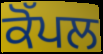
ਕੋੱਪਲ